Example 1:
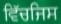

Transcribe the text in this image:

ਵਿੱਚਜਿਸ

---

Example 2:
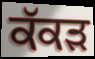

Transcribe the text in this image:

ਕੱਕਡ਼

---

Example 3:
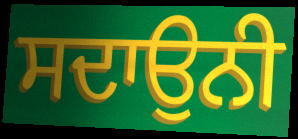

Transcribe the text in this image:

ਸਦਾਉਨੀ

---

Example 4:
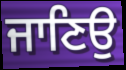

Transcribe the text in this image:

ਜਾਣਿਉ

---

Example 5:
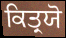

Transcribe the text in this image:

ਕਿਤ੍ਰਯੋ